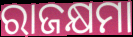
ରାଜକ୍ଷମା